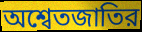
অশ্বেতজাতির